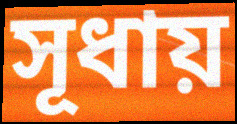
সূধায়